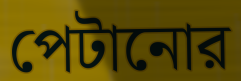
পেটানোর